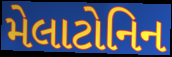
મેલાટોનિન